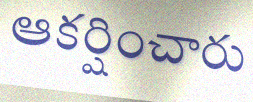
ఆకర్షించారు